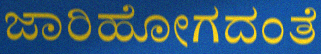
ಜಾರಿಹೋಗದಂತೆ